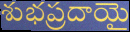
శుభప్రదాయై